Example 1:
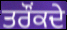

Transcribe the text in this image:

ਤਰੌਂਕਦੇ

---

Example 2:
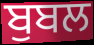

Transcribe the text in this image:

ਬੁਬਲ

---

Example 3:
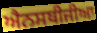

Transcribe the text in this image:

ਐਨਸਥੀਜੀਆ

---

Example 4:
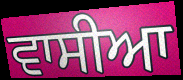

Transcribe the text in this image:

ਵਾਸੀਆ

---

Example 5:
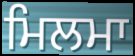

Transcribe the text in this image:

ਮਿਲਮਾ